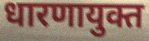
धारणायुक्त